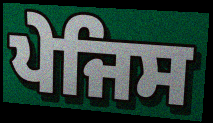
ਪੇਜਿਸ